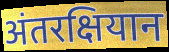
अंतरक्षियान